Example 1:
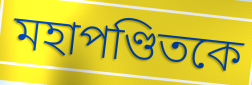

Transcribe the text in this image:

মহাপণ্ডিতকে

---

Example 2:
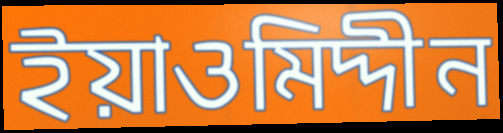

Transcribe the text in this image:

ইয়াওমিদ্দীন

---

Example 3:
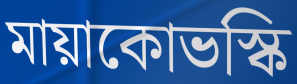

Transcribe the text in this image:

মায়াকোভস্কি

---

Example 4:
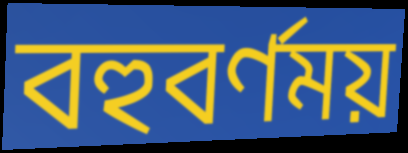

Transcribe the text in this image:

বহুবর্ণময়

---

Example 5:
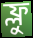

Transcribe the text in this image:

ফ্লু